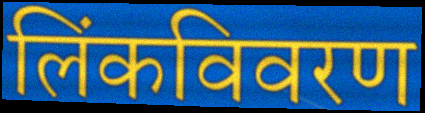
लिंकविवरण